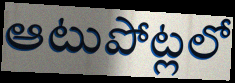
ఆటుపోట్లలో